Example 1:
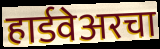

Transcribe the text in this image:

हार्डवेअरचा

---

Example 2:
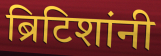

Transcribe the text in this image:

ब्रिटिशांनी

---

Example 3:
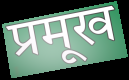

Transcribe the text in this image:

प्रमूख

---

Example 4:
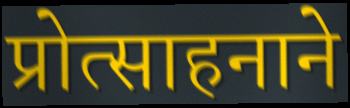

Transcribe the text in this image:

प्रोत्साहनाने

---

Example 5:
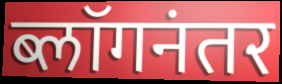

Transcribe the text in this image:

ब्लॉगनंतर